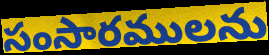
సంసారములను